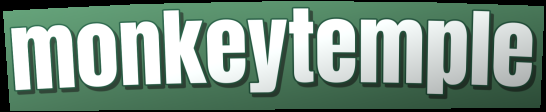
monkeytemple